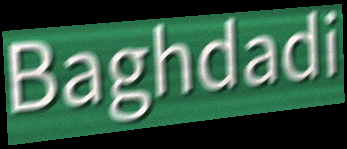
Baghdadi